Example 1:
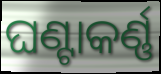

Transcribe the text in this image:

ଘଣ୍ଟାକର୍ଣ୍ଣ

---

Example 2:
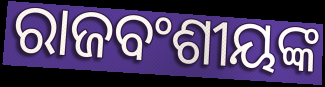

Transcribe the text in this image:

ରାଜବଂଶୀୟଙ୍କ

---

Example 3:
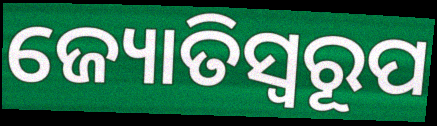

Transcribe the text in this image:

ଜ୍ୟୋତିସ୍ୱରୂପ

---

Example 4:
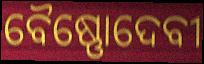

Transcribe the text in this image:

ବୈଷ୍ଣୋଦେବୀ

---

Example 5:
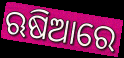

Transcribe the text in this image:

ଋଷିଆରେ